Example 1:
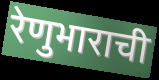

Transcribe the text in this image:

रेणुभाराची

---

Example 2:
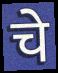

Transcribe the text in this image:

चे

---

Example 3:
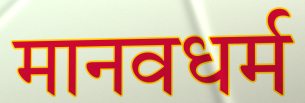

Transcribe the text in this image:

मानवधर्म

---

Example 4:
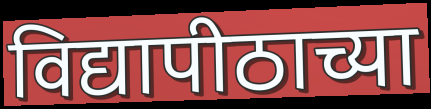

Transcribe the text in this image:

विद्यापीठाच्या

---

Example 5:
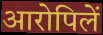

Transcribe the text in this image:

आरोपिलें